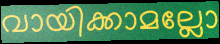
വായിക്കാമല്ലോ